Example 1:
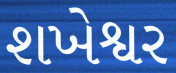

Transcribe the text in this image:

શખેશ્વર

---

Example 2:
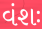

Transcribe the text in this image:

વંશઃ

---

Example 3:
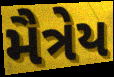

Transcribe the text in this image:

મૈત્રેય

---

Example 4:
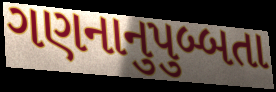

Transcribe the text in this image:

ગણનાનુપુબ્બતા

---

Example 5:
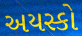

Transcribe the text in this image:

અયસ્કો